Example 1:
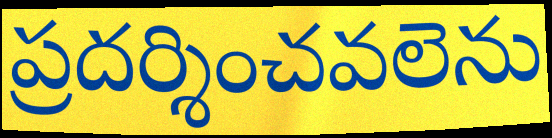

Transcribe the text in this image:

ప్రదర్శించవలెను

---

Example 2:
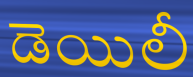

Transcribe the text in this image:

డెయిలీ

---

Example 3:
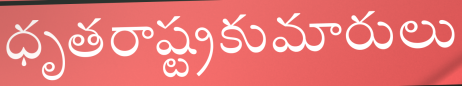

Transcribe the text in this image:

ధృతరాష్ట్రకుమారులు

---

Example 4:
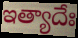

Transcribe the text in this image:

ఇత్యాదేః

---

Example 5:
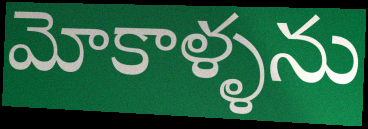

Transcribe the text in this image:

మోకాళ్ళను